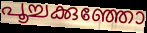
പൂച്ചക്കുഞ്ഞോ